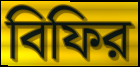
বিফির